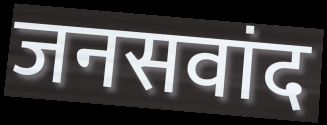
जनसवांद